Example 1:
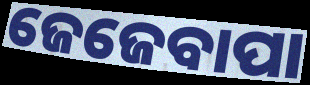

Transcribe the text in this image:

ଜେଜେବାପା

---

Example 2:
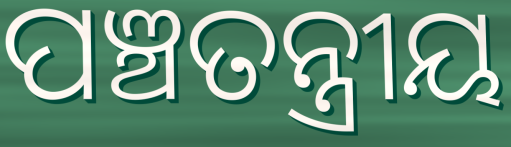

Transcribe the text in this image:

ପଞ୍ଚତନ୍ତ୍ରୀୟ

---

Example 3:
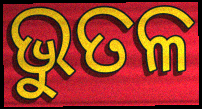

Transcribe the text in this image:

ଭୁତଳ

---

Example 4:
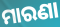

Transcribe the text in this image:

ମାରଣା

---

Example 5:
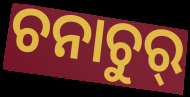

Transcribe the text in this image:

ଚନାଚୁର୍